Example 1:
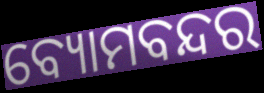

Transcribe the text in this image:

ବ୍ୟୋମବନ୍ଦର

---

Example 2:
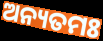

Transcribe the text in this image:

ଅନ୍ୟତମଃ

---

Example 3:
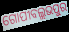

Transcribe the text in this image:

ଗୋପୀବଲ୍ଲଭପୁର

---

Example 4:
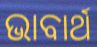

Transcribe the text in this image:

ଭାବାର୍ଥ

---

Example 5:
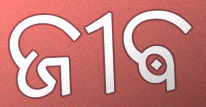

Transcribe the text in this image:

ଜୀଵ